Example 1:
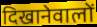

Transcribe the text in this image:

दिखानेवालों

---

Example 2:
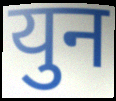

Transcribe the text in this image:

युन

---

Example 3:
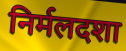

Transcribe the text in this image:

निर्मलदशा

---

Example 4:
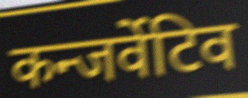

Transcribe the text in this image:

कन्जर्वेटिव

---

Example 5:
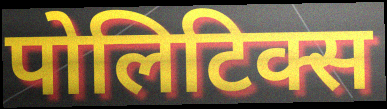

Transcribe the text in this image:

पोलिटिक्स